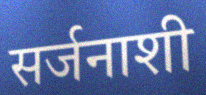
सर्जनाशी